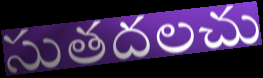
సుతదలచు